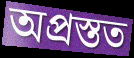
অপ্রস্তত